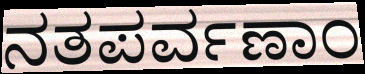
ನತಪರ್ವಣಾಂ